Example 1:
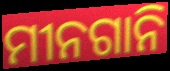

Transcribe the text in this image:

ମୀନଗାନି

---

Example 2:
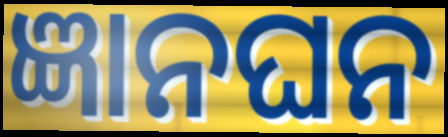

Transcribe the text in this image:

ଜ୍ଞାନଘନ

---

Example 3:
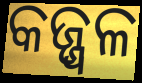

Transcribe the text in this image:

କଜ୍ଜ୍ୱଳ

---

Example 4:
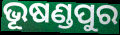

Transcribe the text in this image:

ଭୂଷଣ୍ଡପୁର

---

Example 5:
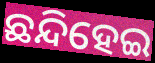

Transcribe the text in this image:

ଛନ୍ଦିହେଇ